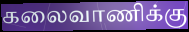
கலைவாணிக்கு